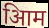
आिम